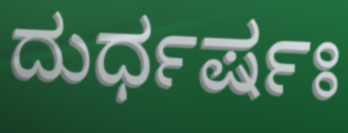
ದುರ್ಧರ್ಷಃ